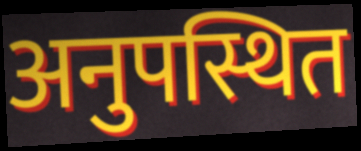
अनुपस्थित